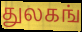
துலகங்